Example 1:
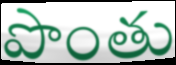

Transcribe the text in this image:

పొంతు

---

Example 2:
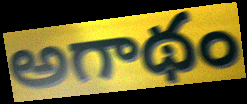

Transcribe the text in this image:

అగాథం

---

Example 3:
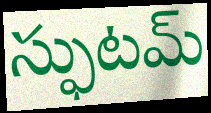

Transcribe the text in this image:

స్ఫుటమ్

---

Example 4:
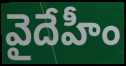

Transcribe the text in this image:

వైదేహీం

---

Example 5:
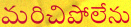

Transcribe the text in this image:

మరిచిపోలేను